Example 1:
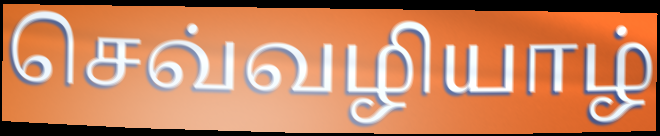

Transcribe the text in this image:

செவ்வழியாழ்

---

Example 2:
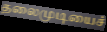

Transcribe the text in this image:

தலைமுடியைச்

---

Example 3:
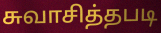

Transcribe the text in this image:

சுவாசித்தபடி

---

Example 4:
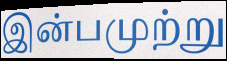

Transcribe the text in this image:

இன்பமுற்று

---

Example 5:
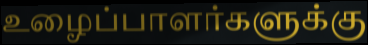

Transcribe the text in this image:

உழைப்பாளர்களுக்கு